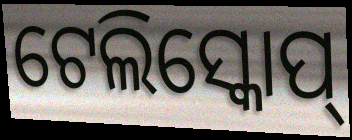
ଟେଲିସ୍କୋପ୍